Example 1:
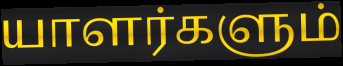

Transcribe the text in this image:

யாளர்களும்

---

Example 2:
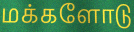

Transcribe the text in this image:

மக்களோடு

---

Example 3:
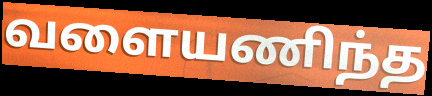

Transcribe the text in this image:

வளையணிந்த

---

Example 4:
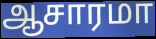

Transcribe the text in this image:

ஆசாரமா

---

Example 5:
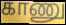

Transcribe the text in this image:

காணு